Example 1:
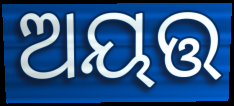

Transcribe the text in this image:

ଅୟତ୍ତ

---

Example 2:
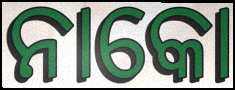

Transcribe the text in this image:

ନାକୋ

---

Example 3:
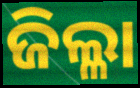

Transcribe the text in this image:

ଜିଲ୍ଳା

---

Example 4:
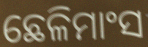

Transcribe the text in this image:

ଛେଳିମାଂସ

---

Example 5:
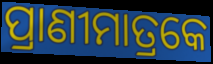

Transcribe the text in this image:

ପ୍ରାଣୀମାତ୍ରକେ